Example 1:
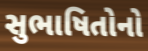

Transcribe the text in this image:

સુભાષિતોનો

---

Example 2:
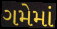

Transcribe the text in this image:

ગમેમાં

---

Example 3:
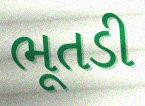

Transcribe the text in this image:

ભૂતડી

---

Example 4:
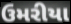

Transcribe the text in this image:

ઉમરીયા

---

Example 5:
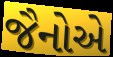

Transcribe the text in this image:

જૈનોએ